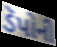
ડૅપોની